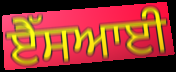
ਏੈੱਸਆਈ